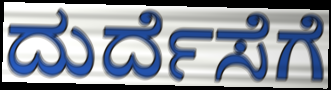
ದುರ್ದೆಸೆಗೆ